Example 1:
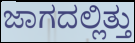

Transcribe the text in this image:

ಜಾಗದಲ್ಲಿತ್ತು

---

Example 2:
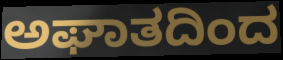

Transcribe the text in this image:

ಅಘಾತದಿಂದ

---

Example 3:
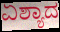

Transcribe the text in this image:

ಏಶ್ಯಾದ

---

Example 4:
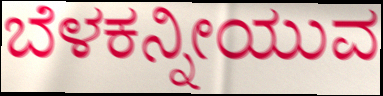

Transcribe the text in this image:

ಬೆಳಕನ್ನೀಯುವ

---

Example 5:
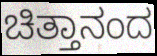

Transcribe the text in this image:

ಚಿತ್ತಾನಂದ